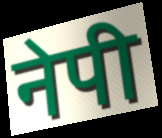
नेपी